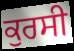
ਕੁਰਸੀ